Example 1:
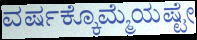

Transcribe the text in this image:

ವರ್ಷಕ್ಕೊಮ್ಮೆಯಷ್ಟೇ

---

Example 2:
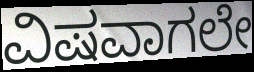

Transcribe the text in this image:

ವಿಷವಾಗಲೇ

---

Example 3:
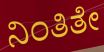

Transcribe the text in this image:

ನಿಂತಿತೇ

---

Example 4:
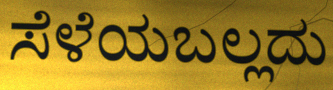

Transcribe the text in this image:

ಸೆಳೆಯಬಲ್ಲದು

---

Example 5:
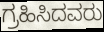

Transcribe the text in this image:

ಗ್ರಹಿಸಿದವರು